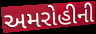
અમરોહીની